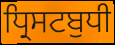
ਧ੍ਰਿਸਟਬੁਧੀ